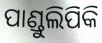
ପାଣ୍ଡୁଲିପିକି